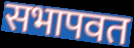
सभापवत